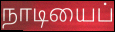
நாடியைப்